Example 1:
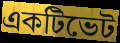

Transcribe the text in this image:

একটিভেট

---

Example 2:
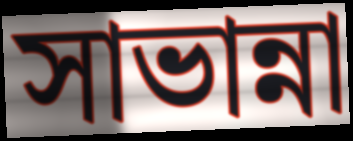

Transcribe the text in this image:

সাভান্না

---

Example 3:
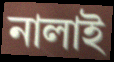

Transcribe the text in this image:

নালাই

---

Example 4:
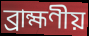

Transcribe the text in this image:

ব্রাহ্মণীয়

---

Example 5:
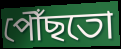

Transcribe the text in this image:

পৌঁছতো